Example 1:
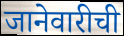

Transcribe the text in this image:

जानेवारीची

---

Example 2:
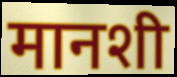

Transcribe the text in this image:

मानशी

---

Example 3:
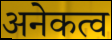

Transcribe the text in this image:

अनेकत्व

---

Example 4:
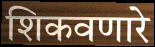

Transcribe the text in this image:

शिकवणारे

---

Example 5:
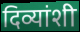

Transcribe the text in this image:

दिव्यांशी